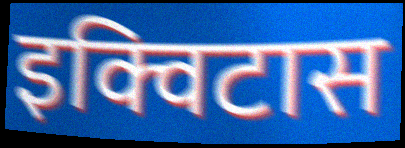
इक्विटास